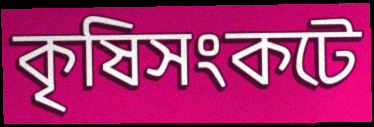
কৃষিসংকটে